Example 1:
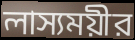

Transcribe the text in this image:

লাস্যময়ীর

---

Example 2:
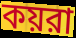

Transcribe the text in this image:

কয়রা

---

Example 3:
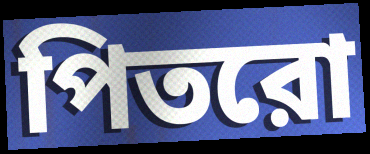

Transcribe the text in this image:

পিতরো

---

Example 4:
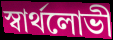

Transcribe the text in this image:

স্বার্থলোভী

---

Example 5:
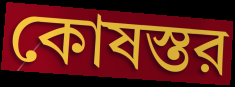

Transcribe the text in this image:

কোষস্তর